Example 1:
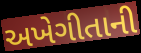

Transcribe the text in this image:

અખેગીતાની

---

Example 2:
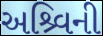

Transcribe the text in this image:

અશ્ર્વિની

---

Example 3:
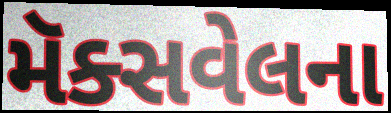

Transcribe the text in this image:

મૅક્સવેલના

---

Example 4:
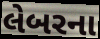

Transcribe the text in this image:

લેબરના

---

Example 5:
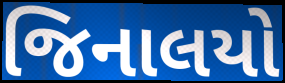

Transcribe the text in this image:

જિનાલયો